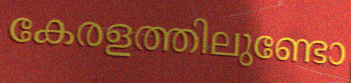
കേരളത്തിലുണ്ടോ